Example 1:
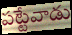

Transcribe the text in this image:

పట్టేవాడు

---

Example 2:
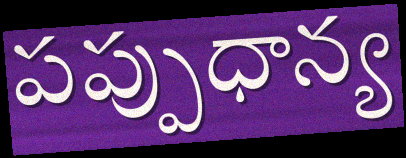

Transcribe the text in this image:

పప్పుధాన్య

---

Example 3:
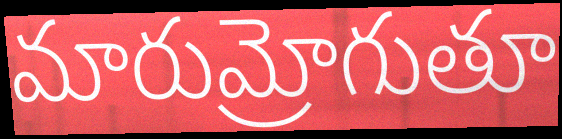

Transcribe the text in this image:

మారుమ్రోగుతూ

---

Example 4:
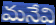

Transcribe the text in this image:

మనేవి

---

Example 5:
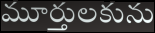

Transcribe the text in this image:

మూర్తులకును